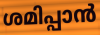
ശമിപ്പാൻ